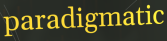
paradigmatic